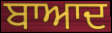
ਬਾਆਦ